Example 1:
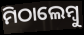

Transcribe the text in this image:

ମିଠାଲେମ୍ବୁ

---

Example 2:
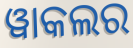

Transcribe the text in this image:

ୱାକଲର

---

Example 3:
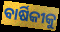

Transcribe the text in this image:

ବାର୍ଷିକୀକୁ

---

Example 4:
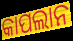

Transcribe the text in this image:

କାପଲାନ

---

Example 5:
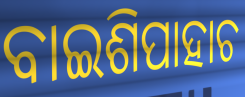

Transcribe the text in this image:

ବାଇଶିପାହାଚ